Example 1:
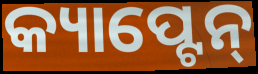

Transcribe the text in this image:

କ୍ୟାପ୍ଟେନ୍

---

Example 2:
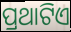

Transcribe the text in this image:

ପ୍ରଥାଟିଏ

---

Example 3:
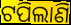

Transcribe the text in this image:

ଟପିଲାଣି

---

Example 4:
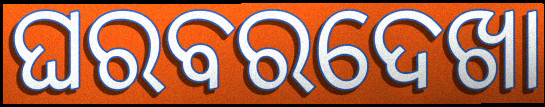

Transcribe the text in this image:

ଘରବରଦେଖା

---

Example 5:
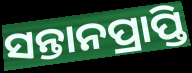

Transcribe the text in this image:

ସନ୍ତାନପ୍ରାପ୍ତି